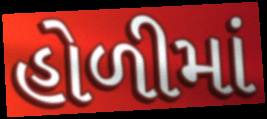
હોળીમાં